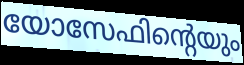
യോസേഫിന്റെയും